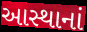
આસ્થાનાં